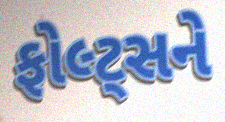
ફોલ્ટ્સને